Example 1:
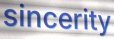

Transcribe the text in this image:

sincerity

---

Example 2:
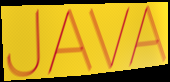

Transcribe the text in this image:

JAVA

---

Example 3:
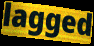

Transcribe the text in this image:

lagged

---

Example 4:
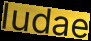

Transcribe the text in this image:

Iudae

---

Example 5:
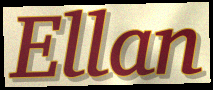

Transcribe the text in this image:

Ellan